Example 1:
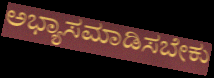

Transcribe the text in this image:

ಅಭ್ಯಾಸಮಾಡಿಸಬೇಕು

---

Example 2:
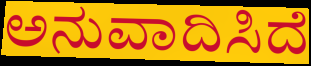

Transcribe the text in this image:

ಅನುವಾದಿಸಿದೆ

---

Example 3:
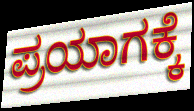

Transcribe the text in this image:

ಪ್ರಯಾಗಕ್ಕೆ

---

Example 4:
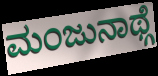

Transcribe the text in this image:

ಮಂಜುನಾಥ್ಗೆ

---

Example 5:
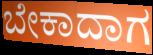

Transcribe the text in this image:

ಬೇಕಾದಾಗ